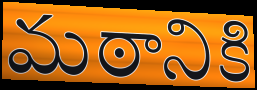
మఠానికి